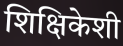
शिक्षिकेशी